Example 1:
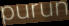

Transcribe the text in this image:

purun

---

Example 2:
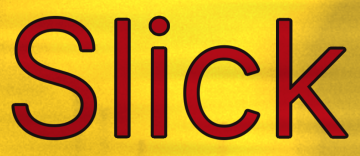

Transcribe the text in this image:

Slick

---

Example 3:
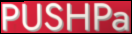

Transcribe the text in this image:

PUSHPa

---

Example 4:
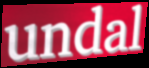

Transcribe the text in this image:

undal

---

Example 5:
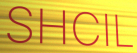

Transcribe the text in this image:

SHCIL